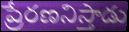
ప్రేరణనిస్తాడు